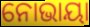
ନୋଭାୟା